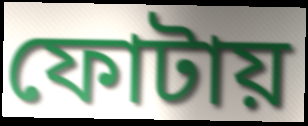
ফোটায়